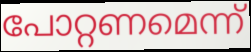
പോറ്റണമെന്ന്